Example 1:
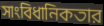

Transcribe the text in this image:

সাংবিধানিকতার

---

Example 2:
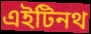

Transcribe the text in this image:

এইটিনথ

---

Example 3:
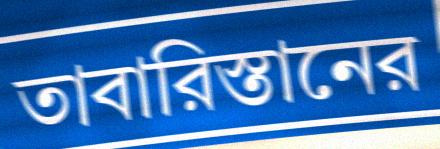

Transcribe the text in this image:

তাবারিস্তানের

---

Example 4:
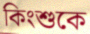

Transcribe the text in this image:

কিংশুকে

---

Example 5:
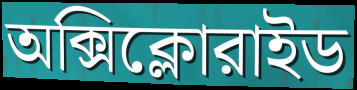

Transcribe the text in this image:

অক্সিক্লোরাইড